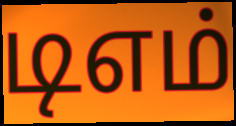
டிஎம்